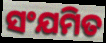
ସଂଯମିତ